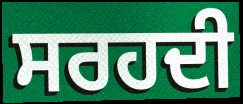
ਸਰਹਦੀ